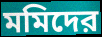
মমিদের